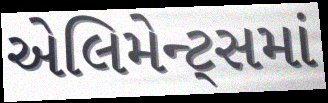
એલિમેન્ટ્સમાં